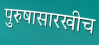
पुरुषासारखीच